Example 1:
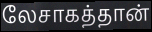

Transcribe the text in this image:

லேசாகத்தான்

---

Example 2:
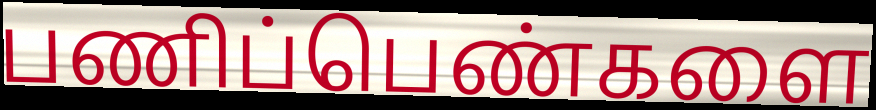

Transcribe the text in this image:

பணிப்பெண்களை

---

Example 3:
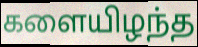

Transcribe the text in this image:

களையிழந்த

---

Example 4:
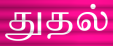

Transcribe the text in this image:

துதல்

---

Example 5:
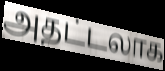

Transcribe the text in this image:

அதட்டலாக